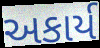
અકાર્ય